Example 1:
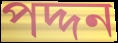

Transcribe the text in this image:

পদ্দন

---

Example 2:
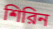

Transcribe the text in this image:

শিরিন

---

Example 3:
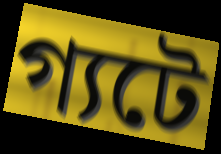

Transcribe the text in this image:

গ্যটে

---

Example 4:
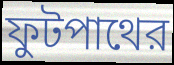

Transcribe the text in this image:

ফুটপাথের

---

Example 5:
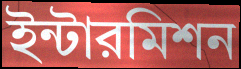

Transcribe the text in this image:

ইন্টারমিশন